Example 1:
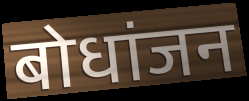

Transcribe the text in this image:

बोधांजन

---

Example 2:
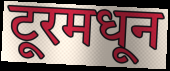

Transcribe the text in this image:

टूरमधून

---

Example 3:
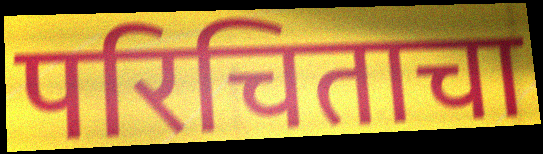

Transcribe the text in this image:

परिचिताचा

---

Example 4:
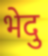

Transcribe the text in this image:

भेदु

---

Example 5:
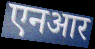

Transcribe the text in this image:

एनआर